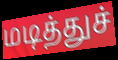
மடித்துச்